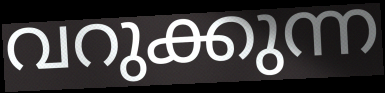
വറുക്കുന്ന